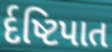
ર્દષ્ટિપાત